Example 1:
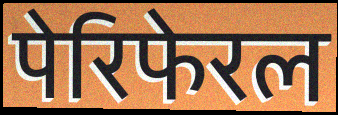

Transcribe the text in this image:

पेरिफेरल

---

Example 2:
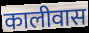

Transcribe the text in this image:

कालीवास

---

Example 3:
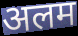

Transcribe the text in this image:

अलम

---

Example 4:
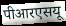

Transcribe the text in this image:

पीआरएसयू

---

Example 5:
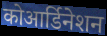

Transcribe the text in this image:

कोआर्डिनेशन